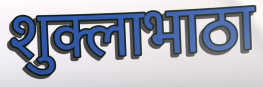
शुक्लाभाठा